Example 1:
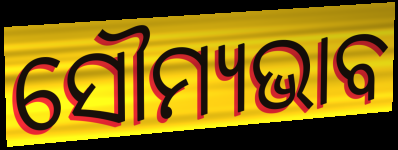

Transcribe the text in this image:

ସୌମ୍ୟଭାବ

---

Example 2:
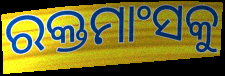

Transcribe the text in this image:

ରକ୍ତମାଂସକୁ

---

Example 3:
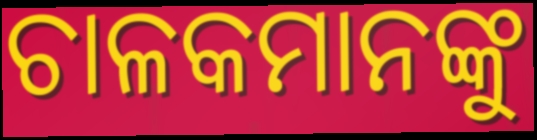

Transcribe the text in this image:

ଚାଳକମାନଙ୍କୁ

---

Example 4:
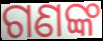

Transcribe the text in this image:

ଗଣଙ୍କ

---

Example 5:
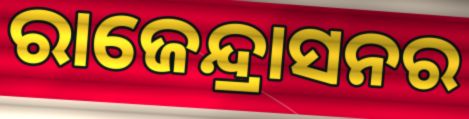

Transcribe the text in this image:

ରାଜେନ୍ଦ୍ରାସନର